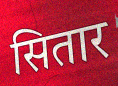
सितार